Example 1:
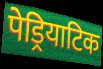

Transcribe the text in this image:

पेड्रियाटिक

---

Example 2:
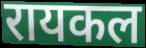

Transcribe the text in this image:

रायकल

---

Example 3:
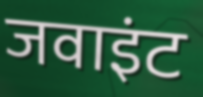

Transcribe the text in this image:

जवाइंट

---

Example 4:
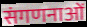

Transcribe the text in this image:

संगणनाओं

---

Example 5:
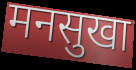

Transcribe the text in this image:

मनसुखा